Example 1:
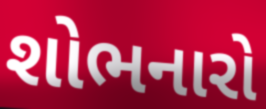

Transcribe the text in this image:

શોભનારો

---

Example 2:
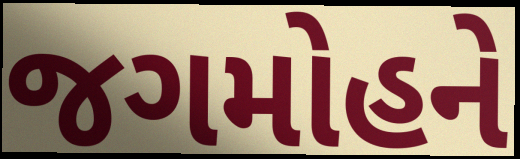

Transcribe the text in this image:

જગમોહને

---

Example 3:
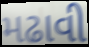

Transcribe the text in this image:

મઢાવી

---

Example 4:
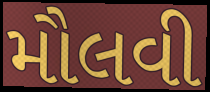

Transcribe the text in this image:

મૌલવી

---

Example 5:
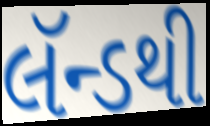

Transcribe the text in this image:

લૅન્ડથી